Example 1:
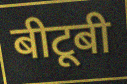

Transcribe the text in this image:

बीटूबी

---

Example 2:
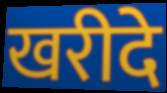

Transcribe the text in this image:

खरीदे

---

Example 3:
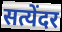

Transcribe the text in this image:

सत्येंदर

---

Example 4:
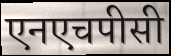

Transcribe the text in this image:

एनएचपीसी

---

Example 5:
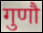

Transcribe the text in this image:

गुणौ